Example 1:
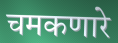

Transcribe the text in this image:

चमकणारे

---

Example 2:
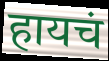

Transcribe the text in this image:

हायचं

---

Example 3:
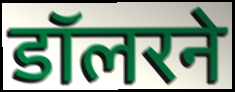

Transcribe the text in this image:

डॉलरने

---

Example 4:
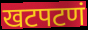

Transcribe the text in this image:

खटपटणं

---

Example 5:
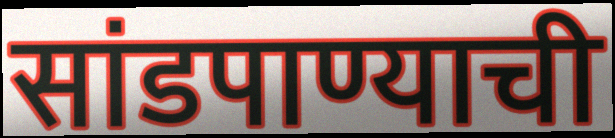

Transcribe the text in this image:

सांडपाण्याची